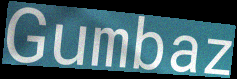
Gumbaz